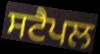
ਸਟੈਪਲ